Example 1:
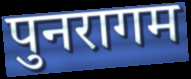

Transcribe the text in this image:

पुनरागम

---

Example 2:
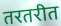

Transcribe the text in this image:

तरतरीत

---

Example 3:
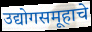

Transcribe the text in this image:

उद्योगसमूहाचे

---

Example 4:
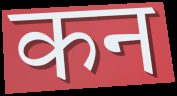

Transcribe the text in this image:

कन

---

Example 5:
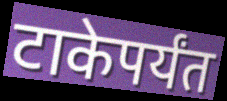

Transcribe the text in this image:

टाकेपर्यंत